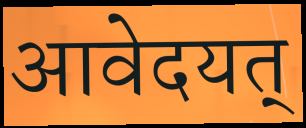
आवेदयत्